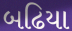
બઢિયા